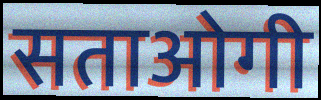
सताओगी